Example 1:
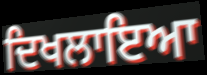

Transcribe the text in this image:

ਦਿਖਲਾਇਆ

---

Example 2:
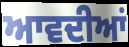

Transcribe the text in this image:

ਆਵਦੀਆਂ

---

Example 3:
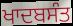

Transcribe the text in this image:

ਖਾਦਬਸੰਤ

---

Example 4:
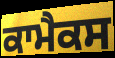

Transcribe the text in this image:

ਕਾਮੈਕਸ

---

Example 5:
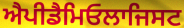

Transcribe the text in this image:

ਐਪੀਡੈਮਿਓਲਾਜਿਸਟ